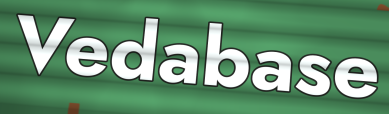
Vedabase